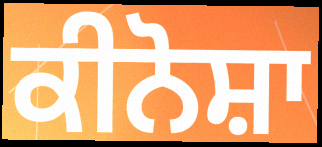
ਕੀਨੋਸ਼ਾ